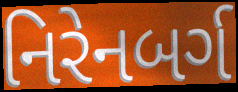
નિરેનબર્ગ